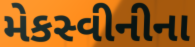
મેકસ્વીનીના